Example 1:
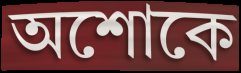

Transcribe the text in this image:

অশোকে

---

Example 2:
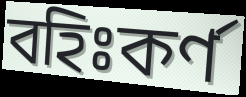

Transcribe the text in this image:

বহিঃকর্ণ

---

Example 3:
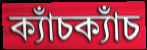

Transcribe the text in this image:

ক্যাঁচক্যাঁচ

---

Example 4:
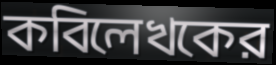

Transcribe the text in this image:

কবিলেখকের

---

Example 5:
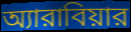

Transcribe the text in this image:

অ্যারাবিয়ার